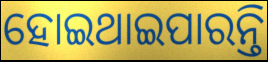
ହୋଇଥାଇପାରନ୍ତି